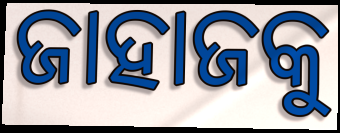
ଜାହାଜକୁ